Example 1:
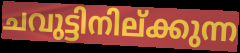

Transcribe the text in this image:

ചവുട്ടിനില്ക്കുന്ന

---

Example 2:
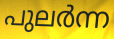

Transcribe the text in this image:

പുലർന്ന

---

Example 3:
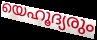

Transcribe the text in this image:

യെഹൂദ്യരും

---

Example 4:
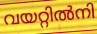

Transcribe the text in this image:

വയറ്റിൽനി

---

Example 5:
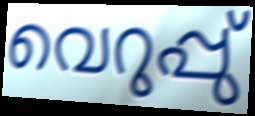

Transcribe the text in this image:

വെറുപ്പു്